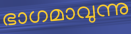
ഭാഗമാവുന്നു